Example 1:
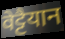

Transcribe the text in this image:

वेट्टैयान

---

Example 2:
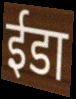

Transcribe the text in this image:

ईडा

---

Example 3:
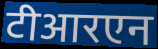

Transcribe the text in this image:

टीआरएन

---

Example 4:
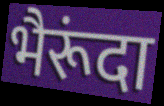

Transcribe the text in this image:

भैरूंदा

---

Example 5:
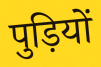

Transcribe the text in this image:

पुड़ियों